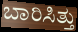
ಬಾರಿಸಿತ್ತು